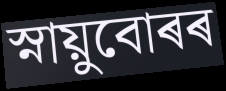
স্নায়ুবোৰৰ